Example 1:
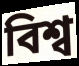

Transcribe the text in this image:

বিশ্ব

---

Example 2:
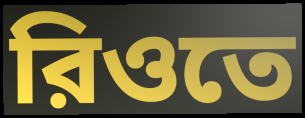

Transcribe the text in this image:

রিওতে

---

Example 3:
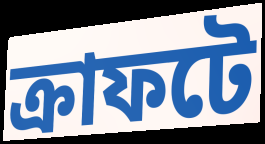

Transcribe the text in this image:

ক্রাফটে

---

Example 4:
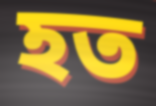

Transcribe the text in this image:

হত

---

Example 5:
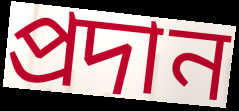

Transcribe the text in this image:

প্রদান